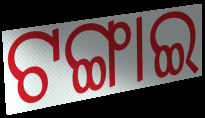
ଟଙ୍ଗାଇ